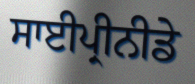
ਸਾਈਪ੍ਰੀਨੀਡੇ